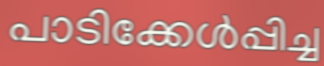
പാടിക്കേൾപ്പിച്ച